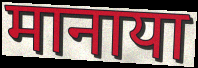
मानाया